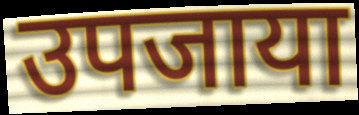
उपजाया